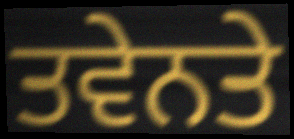
ਤਵੇਨਤੇ